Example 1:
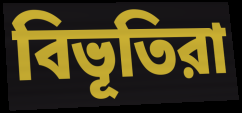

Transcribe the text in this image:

বিভূতিরা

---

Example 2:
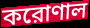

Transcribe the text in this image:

করোণাল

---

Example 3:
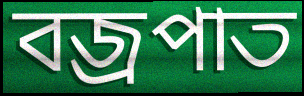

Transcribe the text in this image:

বজ্রপাত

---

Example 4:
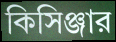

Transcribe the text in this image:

কিসিঞ্জার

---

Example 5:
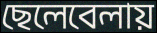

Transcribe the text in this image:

ছেলেবেলায়